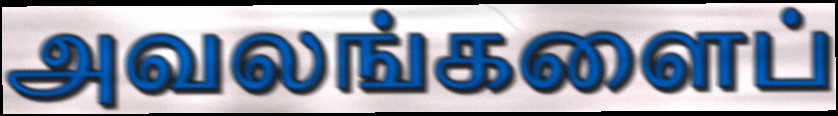
அவலங்களைப்